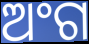
ଅଂଗ